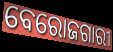
ବେରୋଜଗାରୀ